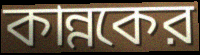
কান্নকের